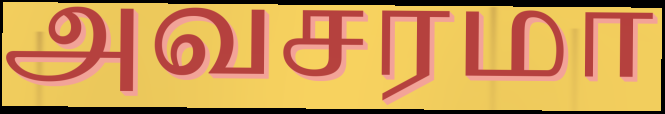
அவசரமா